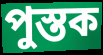
পুস্তক